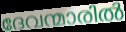
ദേവന്മാരിൽ